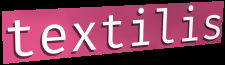
textilis